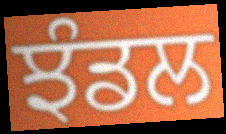
ਝੰਡਲ